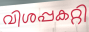
വിശപ്പകറ്റി